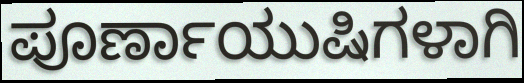
ಪೂರ್ಣಾಯುಷಿಗಳಾಗಿ